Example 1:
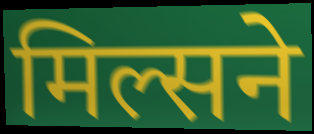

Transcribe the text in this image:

मिल्सने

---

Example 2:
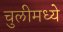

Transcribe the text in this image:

चुलीमध्ये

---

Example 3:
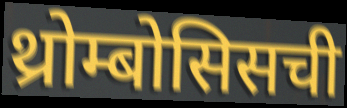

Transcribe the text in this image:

थ्रोम्बोसिसची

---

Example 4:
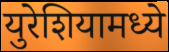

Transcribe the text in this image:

युरेशियामध्ये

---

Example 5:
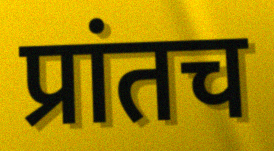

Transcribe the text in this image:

प्रांतच